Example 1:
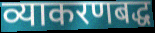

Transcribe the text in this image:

व्याकरणबद्ध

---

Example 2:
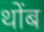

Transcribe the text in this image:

थोंब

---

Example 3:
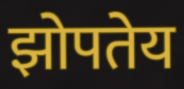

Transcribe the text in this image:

झोपतेय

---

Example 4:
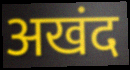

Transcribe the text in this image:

अखंद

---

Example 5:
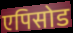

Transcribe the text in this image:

एपिसोड